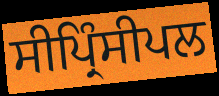
ਸੀਪ੍ਰਿੰਸੀਪਲ